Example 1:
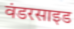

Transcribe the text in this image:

वंडरसाइड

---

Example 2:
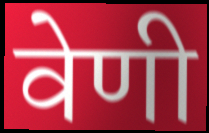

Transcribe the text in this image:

वेणी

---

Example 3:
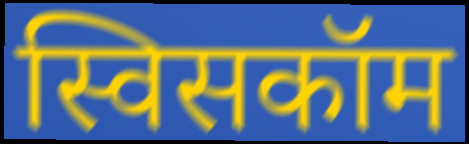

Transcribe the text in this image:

स्विसकॉम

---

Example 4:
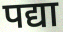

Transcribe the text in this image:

पद्या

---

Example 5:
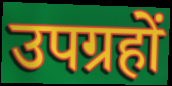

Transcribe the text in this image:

उपग्रहों